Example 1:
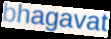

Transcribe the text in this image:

bhagavat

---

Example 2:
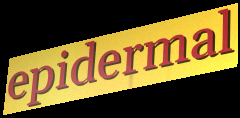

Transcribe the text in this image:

epidermal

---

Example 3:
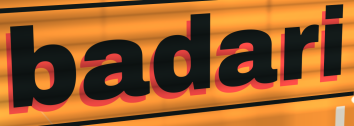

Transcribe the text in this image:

badari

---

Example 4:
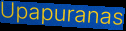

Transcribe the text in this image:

Upapuranas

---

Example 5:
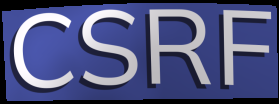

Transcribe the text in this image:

CSRF